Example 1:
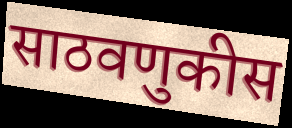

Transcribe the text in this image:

साठवणुकीस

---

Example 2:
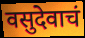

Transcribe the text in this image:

वसुदेवाचं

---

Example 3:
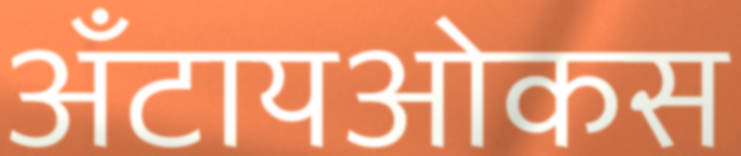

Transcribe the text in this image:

अँटायओकस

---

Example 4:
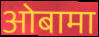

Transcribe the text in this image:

ओबामा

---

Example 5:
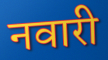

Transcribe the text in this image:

नवारी